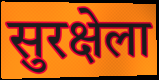
सुरक्षेला